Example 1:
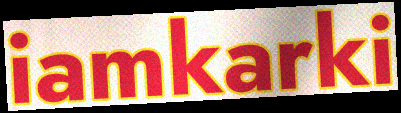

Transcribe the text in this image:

iamkarki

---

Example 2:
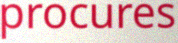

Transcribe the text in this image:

procures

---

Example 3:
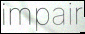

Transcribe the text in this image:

impair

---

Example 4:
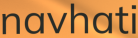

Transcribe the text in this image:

navhati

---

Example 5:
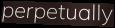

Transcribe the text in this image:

perpetually